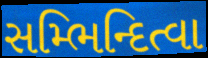
સમ્ભિન્દિત્વા